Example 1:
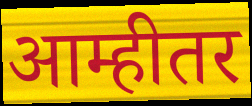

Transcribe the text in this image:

आम्हीतर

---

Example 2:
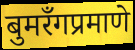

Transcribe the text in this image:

बुमरँगप्रमाणे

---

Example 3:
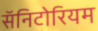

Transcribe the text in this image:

सॅनिटोरियम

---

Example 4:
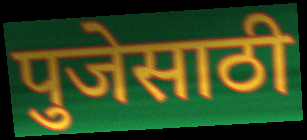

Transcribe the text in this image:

पुजेसाठी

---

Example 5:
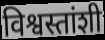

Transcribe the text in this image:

विश्वस्तांशी